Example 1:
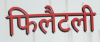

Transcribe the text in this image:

फिलैटली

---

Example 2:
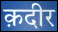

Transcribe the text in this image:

क़दीर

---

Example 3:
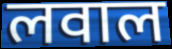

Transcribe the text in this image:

लवाल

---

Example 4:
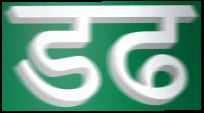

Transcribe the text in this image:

डढ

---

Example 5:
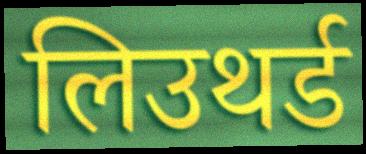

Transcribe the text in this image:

लिउथर्ड